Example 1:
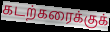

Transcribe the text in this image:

கடற்கரைக்குக்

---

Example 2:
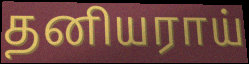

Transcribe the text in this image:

தனியராய்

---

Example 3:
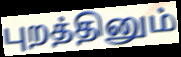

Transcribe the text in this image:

புறத்தினும்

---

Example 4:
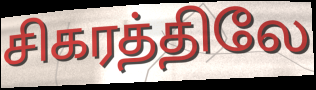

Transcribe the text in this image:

சிகரத்திலே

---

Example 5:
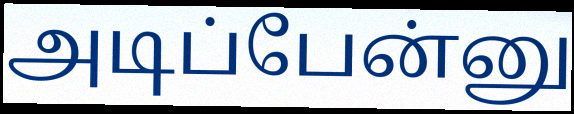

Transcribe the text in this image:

அடிப்பேன்னு